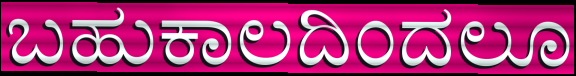
ಬಹುಕಾಲದಿಂದಲೂ